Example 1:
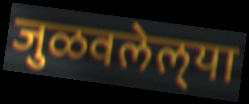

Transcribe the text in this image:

जुळवलेल्या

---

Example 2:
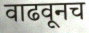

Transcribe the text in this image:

वाढवूनच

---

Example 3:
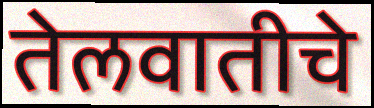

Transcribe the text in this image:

तेलवातीचे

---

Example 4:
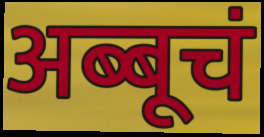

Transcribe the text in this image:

अब्बूचं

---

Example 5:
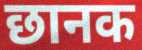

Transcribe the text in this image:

छानक